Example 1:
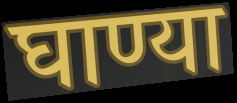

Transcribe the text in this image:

घाण्या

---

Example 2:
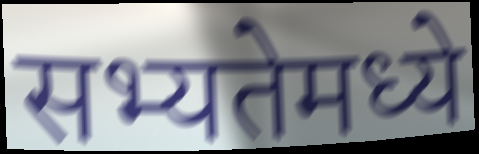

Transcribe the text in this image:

सभ्यतेमध्ये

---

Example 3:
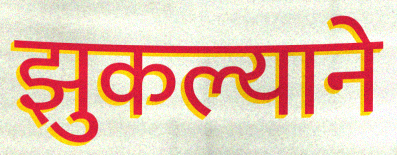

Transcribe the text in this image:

झुकल्याने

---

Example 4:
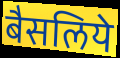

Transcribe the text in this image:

बैसलिये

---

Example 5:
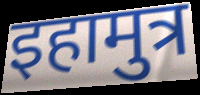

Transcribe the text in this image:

इहामुत्र